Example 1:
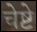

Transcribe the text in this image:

चेष्टे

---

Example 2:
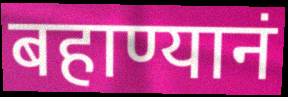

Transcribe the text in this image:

बहाण्यानं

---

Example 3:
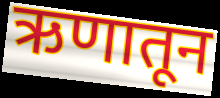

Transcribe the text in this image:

ऋणातून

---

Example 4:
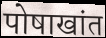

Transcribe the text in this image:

पोषाखांत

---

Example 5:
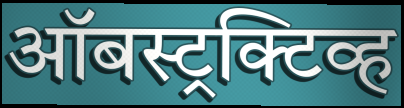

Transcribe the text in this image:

ऑबस्ट्रक्टिव्ह